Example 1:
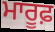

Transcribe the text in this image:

ਮਾਰੂਫ਼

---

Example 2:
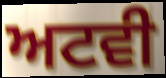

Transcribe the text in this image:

ਅਟਵੀ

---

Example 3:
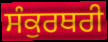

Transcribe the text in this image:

ਸੰਕੁਰਥਰੀ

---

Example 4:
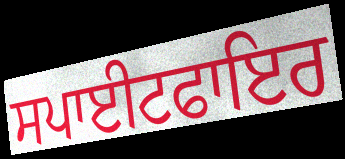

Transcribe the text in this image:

ਸਪਾਈਟਫਾਇਰ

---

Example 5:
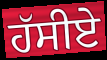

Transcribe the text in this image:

ਹੱਸੀਏ